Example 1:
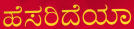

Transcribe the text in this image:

ಹೆಸರಿದೆಯಾ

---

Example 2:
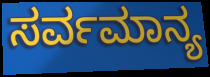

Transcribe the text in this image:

ಸರ್ವಮಾನ್ಯ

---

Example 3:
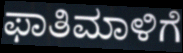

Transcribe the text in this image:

ಫಾತಿಮಾಳಿಗೆ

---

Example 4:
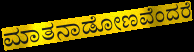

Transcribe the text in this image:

ಮಾತನಾಡೋಣವೆಂದರೆ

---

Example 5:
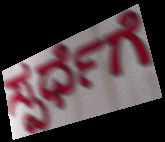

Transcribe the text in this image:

ಸ್ಪರ್ಧೆಗೆ